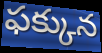
ఫక్కున